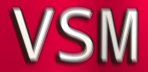
VSM